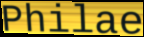
Philae